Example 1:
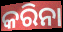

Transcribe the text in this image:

କରିନା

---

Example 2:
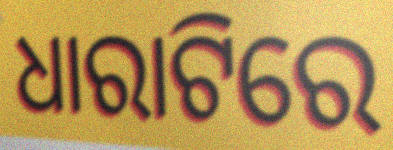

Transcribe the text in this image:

ଧାରାଟିରେ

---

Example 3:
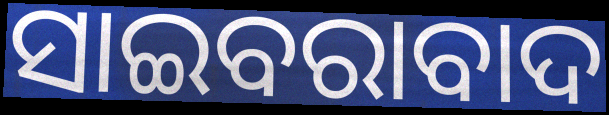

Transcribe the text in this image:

ସାଇବରାବାଦ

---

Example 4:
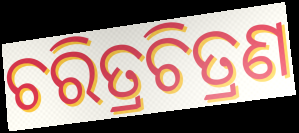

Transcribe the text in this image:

ଚରିତ୍ରଚିତ୍ରଣ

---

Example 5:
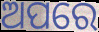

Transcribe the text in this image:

ଅପରେ